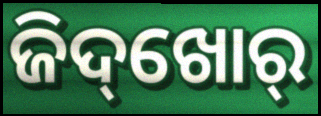
ଜିଦ୍‌ଖୋର୍